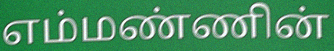
எம்மண்ணின்